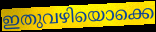
ഇതുവഴിയൊക്കെ